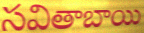
సవితాబాయి